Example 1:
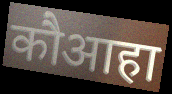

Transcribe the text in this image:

कौआहा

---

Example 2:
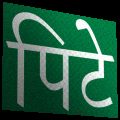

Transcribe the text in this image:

पिटे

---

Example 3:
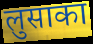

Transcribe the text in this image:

लुसाका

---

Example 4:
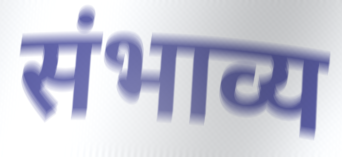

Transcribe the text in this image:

संभाव्य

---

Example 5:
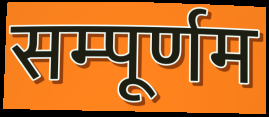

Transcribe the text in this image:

सम्पूर्णम